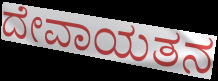
ದೇವಾಯತನ